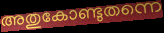
അതുകോണ്ടുതന്നെ